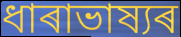
ধাৰাভাষ্যৰ